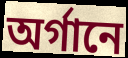
অর্গানে